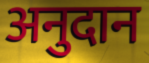
अनुदान